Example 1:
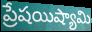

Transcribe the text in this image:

ప్రేషయిష్యామి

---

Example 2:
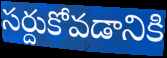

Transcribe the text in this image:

సర్దుకోవడానికి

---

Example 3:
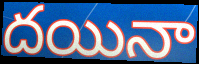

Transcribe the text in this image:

దయినా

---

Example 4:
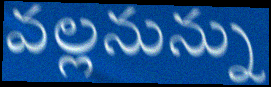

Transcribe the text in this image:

వల్లనున్ను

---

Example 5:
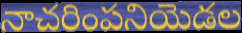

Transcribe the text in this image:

నాచరింపనియెడల